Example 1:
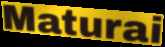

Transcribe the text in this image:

Maturai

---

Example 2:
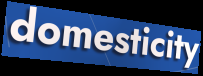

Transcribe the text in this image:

domesticity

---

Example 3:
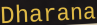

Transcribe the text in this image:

Dharana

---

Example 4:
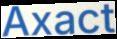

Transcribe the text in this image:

Axact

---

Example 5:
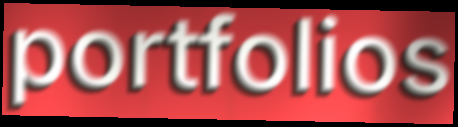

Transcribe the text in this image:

portfolios